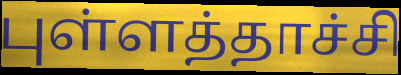
புள்ளத்தாச்சி